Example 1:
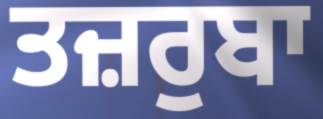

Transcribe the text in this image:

ਤਜ਼ਰੁਬਾ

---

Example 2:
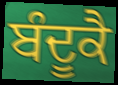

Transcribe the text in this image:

ਬੰਦੂਕੈ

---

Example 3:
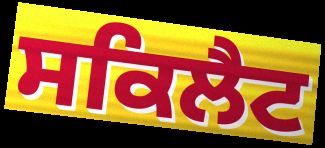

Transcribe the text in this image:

ਸਕਿਲੈਟ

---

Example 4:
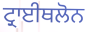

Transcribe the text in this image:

ਟ੍ਰਾਈਥਲੋਨ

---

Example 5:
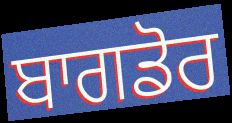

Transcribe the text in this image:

ਬਾਗਡੋਰ